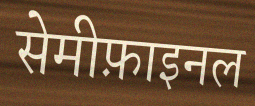
सेमीफ़ाइनल